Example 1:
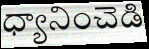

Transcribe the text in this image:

ధ్యానించెడి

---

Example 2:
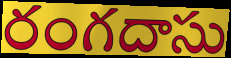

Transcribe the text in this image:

రంగదాసు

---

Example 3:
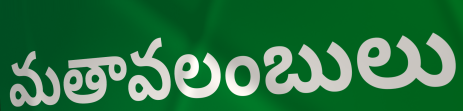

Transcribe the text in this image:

మతావలంబులు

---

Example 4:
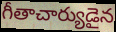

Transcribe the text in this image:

గీతాచార్యుడైన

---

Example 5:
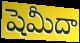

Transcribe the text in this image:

షెమీదా